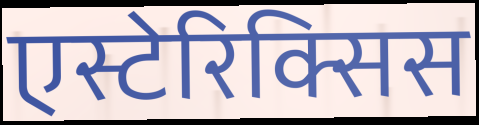
एस्टेरिक्सिस